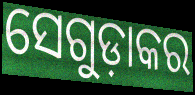
ସେଗୁଡ଼ାକର